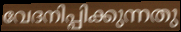
വേദനിപ്പിക്കുന്നതു